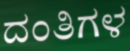
ದಂತಿಗಳ